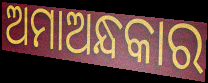
ଅମାଅନ୍ଧକାର